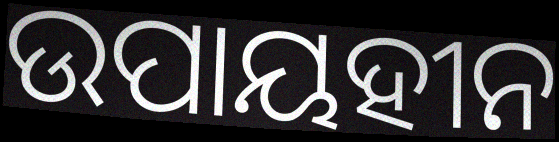
ଉପାୟହୀନ